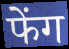
फेंग